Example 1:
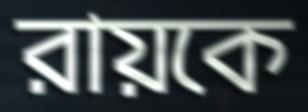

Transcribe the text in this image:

রায়কে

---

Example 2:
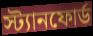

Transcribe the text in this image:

স্ট্যানফোর্ড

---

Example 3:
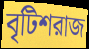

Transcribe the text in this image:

বৃটিশরাজ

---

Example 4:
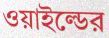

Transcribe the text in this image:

ওয়াইল্ডের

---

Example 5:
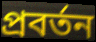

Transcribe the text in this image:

প্রবর্তন